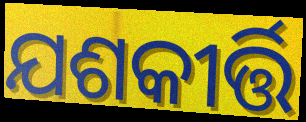
ଯଶକୀର୍ତ୍ତି